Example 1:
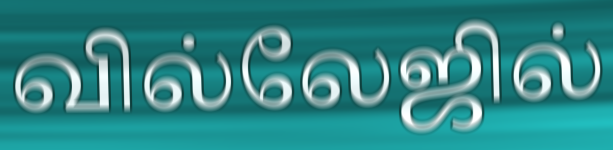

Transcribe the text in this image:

வில்லேஜில்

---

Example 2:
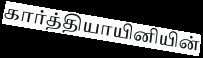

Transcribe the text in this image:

கார்த்தியாயினியின்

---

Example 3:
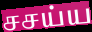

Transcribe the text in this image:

சசய்ய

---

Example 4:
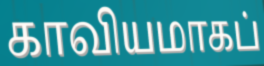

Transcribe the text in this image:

காவியமாகப்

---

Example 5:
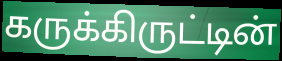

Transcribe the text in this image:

கருக்கிருட்டின்